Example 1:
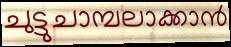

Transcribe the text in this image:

ചുട്ടുചാമ്പലാക്കാൻ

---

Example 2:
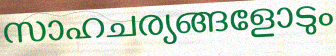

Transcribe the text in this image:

സാഹചര്യങ്ങളോടും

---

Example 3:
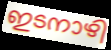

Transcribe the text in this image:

ഇടനാഴി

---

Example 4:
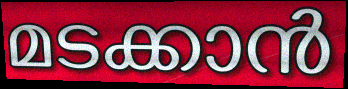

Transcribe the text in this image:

മടക്കാൻ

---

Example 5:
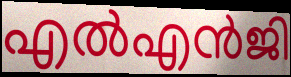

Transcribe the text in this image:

എൽഎൻജി